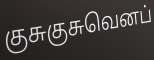
குசுகுசுவெனப்